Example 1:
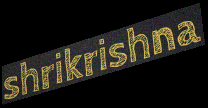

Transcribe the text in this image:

shrikrishna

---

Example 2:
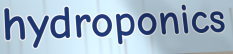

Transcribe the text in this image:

hydroponics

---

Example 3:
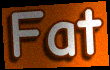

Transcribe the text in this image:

Fat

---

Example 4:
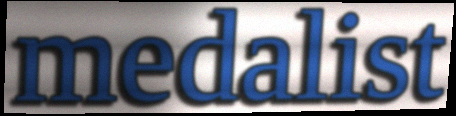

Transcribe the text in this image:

medalist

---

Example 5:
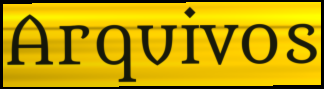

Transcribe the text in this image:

Arquivos